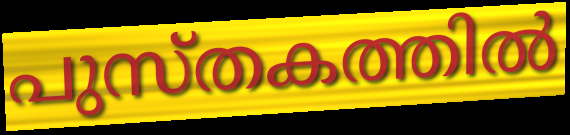
പുസ്തകത്തിൽ